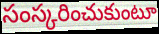
సంస్కరించుకుంటూ